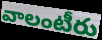
వాలంటీరు